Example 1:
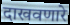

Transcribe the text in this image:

दाखवणारे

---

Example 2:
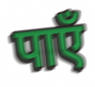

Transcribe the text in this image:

पाएँ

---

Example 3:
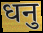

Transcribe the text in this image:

धनु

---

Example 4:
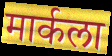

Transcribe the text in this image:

मार्कला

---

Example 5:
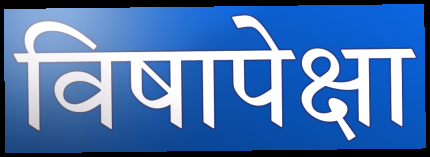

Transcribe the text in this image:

विषापेक्षा